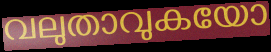
വലുതാവുകയോ